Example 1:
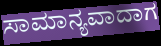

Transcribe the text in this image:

ಸಾಮಾನ್ಯವಾದಾಗ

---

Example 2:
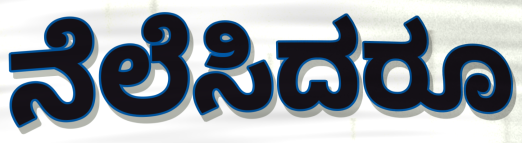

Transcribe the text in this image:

ನೆಲೆಸಿದರೂ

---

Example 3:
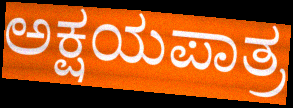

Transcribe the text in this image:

ಅಕ್ಷಯಪಾತ್ರ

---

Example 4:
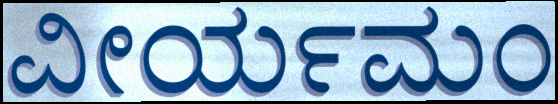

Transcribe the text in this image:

ವೀರ್ಯಮಂ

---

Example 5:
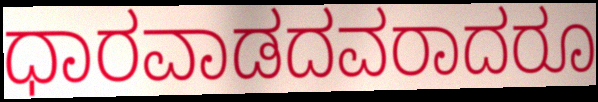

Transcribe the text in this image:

ಧಾರವಾಡದವರಾದರೂ